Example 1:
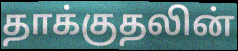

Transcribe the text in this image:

தாக்குதலின்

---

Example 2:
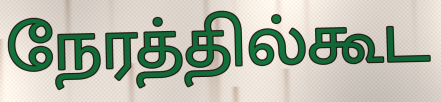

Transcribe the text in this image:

நேரத்தில்கூட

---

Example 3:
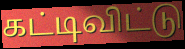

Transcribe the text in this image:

கட்டிவிட்டு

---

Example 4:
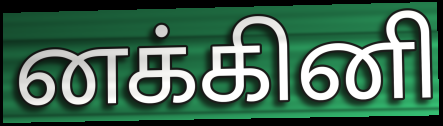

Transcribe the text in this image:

னக்கினி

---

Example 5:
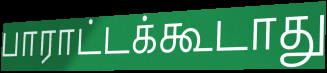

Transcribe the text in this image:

பாராட்டக்கூடாது